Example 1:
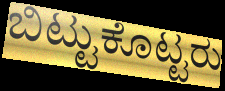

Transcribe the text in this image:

ಬಿಟ್ಟುಕೊಟ್ಟರು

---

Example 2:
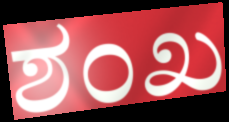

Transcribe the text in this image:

ಶಂಖ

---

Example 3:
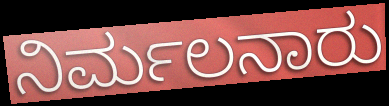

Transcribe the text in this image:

ನಿರ್ಮಲನಾರು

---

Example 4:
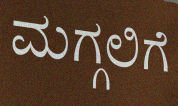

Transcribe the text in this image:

ಮಗ್ಗಲಿಗೆ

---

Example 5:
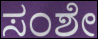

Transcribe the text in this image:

ಸಂಶೇ